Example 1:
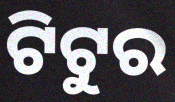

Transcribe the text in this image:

ଟିଟୁର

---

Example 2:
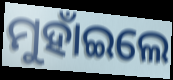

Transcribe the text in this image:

ମୁହାଁଇଲେ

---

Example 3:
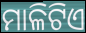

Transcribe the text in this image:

ମାଳିଟିଏ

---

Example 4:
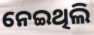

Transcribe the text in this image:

ନେଇଥିଲି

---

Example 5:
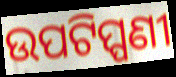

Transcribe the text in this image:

ଉପଟିପ୍ପଣୀ